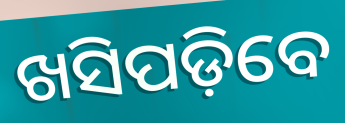
ଖସିପଡ଼ିବେ